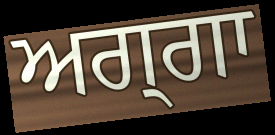
ਅਗ੍ਗਾ